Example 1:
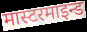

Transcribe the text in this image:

मास्टरमाइन्ड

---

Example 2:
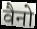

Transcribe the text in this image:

वैनो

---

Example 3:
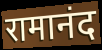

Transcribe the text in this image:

रामानंद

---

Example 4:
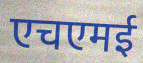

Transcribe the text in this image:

एचएमई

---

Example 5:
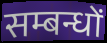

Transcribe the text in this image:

सम्बन्धों